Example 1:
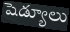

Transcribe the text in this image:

షెడ్యూలు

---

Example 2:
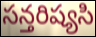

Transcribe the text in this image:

సన్తరిష్యసి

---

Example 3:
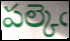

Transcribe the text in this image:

పల్కెఁ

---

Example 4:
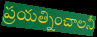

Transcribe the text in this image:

ప్రయత్నించాలనీ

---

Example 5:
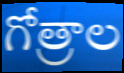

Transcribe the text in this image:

గోత్రాల